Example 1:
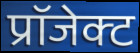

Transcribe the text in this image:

प्रॉजेक्‍ट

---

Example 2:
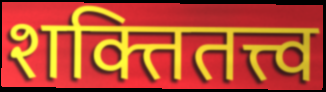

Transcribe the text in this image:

शक्तितत्त्व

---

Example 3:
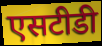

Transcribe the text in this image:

एसटीडी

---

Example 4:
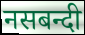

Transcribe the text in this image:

नसबन्दी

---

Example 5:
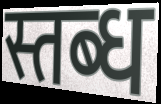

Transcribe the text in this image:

स्तब्ध